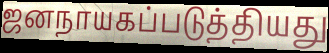
ஜனநாயகப்படுத்தியது